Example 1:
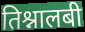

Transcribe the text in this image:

तिश्नालबी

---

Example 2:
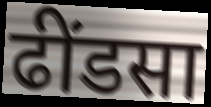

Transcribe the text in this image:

ढींडसा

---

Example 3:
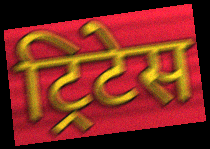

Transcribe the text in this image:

ट्रिटेस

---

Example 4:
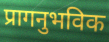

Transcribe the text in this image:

प्रागनुभविक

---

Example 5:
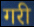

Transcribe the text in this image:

गरी